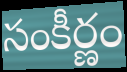
సంకీర్ణం